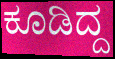
ಕೂಡಿದ್ದ